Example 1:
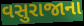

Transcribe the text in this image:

વસુરાજાના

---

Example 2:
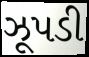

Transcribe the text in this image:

ઝૂપડી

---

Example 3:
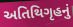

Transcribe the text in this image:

અતિથિગૃહનું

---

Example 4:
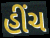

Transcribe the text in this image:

હીંચ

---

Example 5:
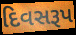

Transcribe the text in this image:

દિવસરૂપ